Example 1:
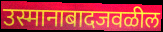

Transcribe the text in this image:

उस्मानाबादजवळील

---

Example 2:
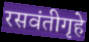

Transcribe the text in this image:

रसवंतीगृहे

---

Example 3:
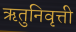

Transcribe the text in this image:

ऋतुनिवृत्ती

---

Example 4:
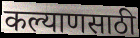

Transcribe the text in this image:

कल्याणसाठी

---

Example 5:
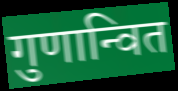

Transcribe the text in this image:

गुणान्वित